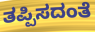
ತಪ್ಪಿಸದಂತೆ